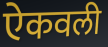
ऐकवली